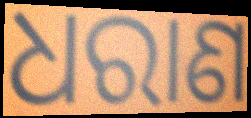
ଧରାଣ